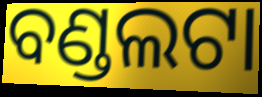
ବଣ୍ଡଲଟା